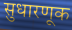
सुधारणूक